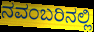
ನವಂಬರಿನಲ್ಲಿ